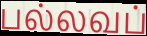
பல்லவப்